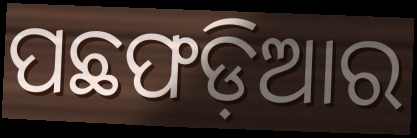
ପଛଫଡ଼ିଆର